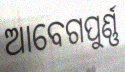
ଆବେଗପୁର୍ଣ୍ଣ